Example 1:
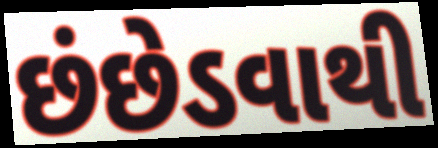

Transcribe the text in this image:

છંછેડવાથી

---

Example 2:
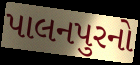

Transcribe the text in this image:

પાલનપુરનો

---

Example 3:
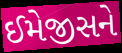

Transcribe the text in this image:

ઈમેજીસને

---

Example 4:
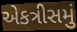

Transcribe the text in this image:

એકત્રીસમું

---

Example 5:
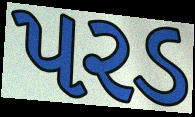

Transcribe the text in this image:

પરડ